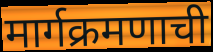
मार्गक्रमणाची